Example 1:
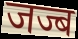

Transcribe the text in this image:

जज्ब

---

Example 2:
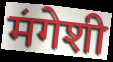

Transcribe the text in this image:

मंगेशी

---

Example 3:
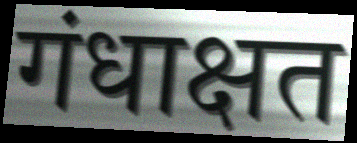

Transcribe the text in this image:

गंधाक्षत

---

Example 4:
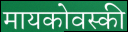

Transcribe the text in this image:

मायकोवस्की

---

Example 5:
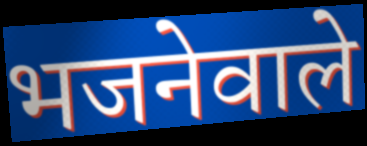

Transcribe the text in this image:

भजनेवाले